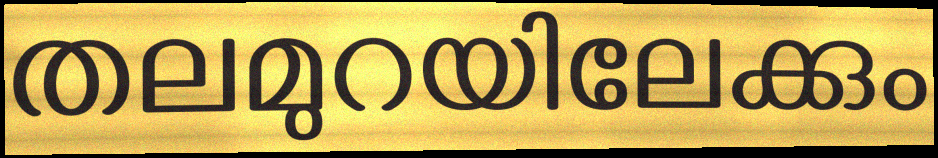
തലമുറയിലേക്കും